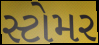
સ્ટોમર